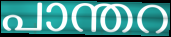
പാന്തറ